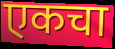
एकचा